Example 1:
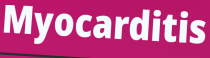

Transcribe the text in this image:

Myocarditis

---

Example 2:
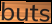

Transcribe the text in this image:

buts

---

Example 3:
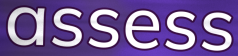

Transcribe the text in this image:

assess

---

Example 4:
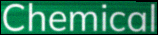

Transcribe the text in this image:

Chemical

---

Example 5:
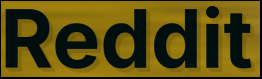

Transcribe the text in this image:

Reddit